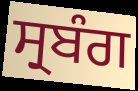
ਸ੍ਰਬੰਗ